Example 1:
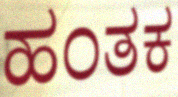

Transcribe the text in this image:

ಹಂತಕ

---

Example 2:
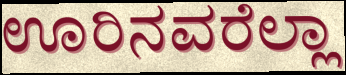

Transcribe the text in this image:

ಊರಿನವರೆಲ್ಲಾ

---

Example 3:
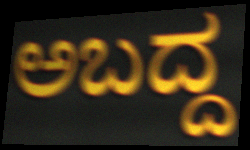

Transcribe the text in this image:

ಅಬದ್ದ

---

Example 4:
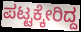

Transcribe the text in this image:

ಪಟ್ಟಕ್ಕೇರಿದ್ದ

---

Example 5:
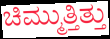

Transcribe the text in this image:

ಚಿಮ್ಮುತ್ತಿತ್ತು